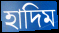
হাদিম